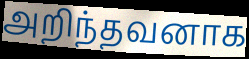
அறிந்தவனாக